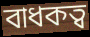
বাধকত্ব